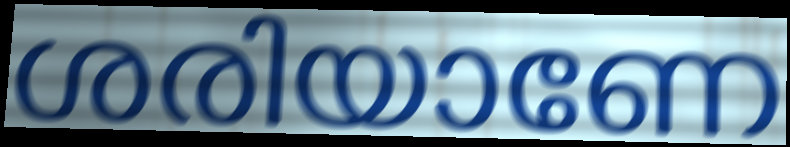
ശരിയാണേ